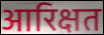
आरिक्षत